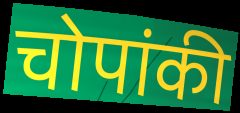
चोपांकी